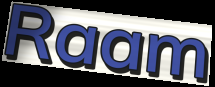
Raam